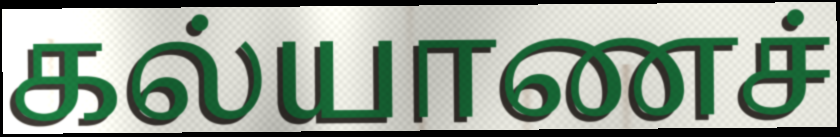
கல்யாணச்